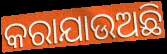
କରାଯାଉଅଛି